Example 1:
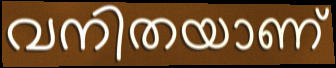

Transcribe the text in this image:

വനിതയാണ്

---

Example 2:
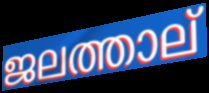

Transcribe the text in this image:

ജലത്താല്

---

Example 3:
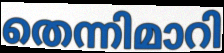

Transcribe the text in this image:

തെന്നിമാറി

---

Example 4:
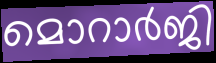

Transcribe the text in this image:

മൊറാർജി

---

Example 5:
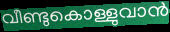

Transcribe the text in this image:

വീണ്ടുകൊള്ളുവാൻ